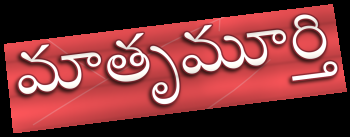
మాతృమూర్తి